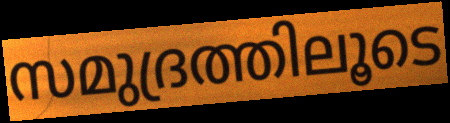
സമുദ്രത്തിലൂടെ